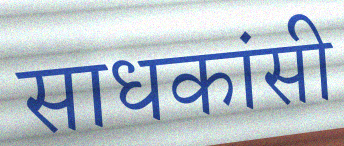
साधकांसी